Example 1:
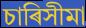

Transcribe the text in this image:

চাৰিসীমা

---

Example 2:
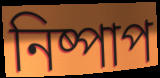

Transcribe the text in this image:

নিষ্পাপ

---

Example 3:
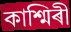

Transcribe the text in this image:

কাশ্মিৰী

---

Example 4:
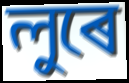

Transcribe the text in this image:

লুৰে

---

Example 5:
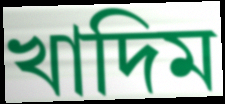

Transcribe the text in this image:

খাদিম